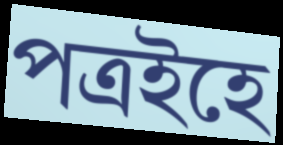
পত্ৰইহে